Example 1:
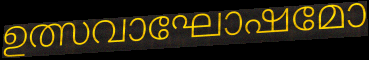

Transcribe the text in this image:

ഉത്സവാഘോഷമോ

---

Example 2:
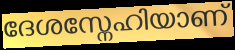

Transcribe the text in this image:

ദേശസ്നേഹിയാണ്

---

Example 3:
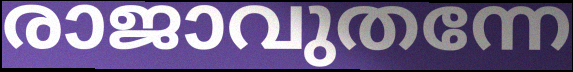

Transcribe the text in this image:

രാജാവുതന്നേ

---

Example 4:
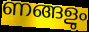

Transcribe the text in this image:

ണങ്ങളും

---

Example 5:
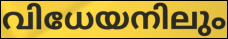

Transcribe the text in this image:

വിധേയനിലും